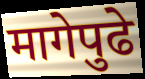
मागेपुढे